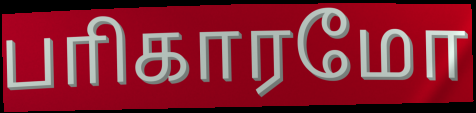
பரிகாரமோ